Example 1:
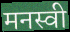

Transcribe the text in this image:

मनस्वी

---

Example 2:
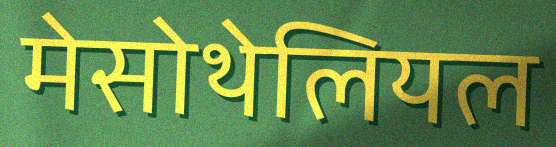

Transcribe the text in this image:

मेसोथेलियल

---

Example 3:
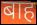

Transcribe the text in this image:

बाह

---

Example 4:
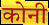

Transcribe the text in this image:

कोनी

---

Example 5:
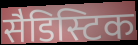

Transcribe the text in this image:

सैडिस्टिक